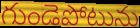
గుండెపోటును